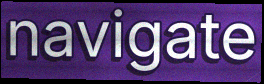
navigate